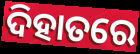
ଦିହାତରେ